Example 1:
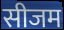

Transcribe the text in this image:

सीजम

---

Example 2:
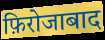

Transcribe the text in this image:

फ़िरोजाबाद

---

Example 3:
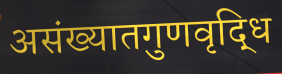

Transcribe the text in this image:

असंख्यातगुणवृद्धि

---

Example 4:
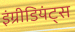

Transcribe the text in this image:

इंग्रीडियंट्स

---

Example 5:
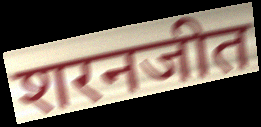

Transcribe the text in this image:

शरनजीत